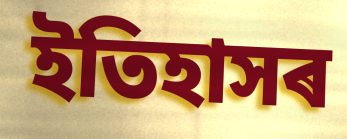
ইতিহাসৰ